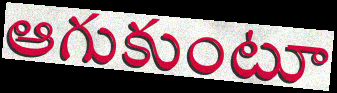
ఆగుకుంటూ